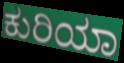
ಕುರಿಯಾ